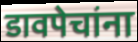
डावपेचांना